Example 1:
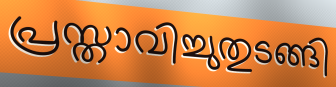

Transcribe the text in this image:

പ്രസ്താവിച്ചുതുടങ്ങി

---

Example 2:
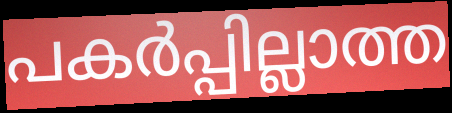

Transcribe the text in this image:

പകർപ്പില്ലാത്ത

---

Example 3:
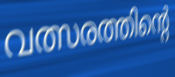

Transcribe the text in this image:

വത്സരത്തിന്റെ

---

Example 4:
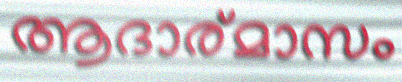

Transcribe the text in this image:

ആദാര്മാസം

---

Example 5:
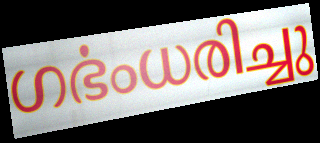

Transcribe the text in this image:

ഗൎഭംധരിച്ചു